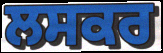
ਲਸਕਰ